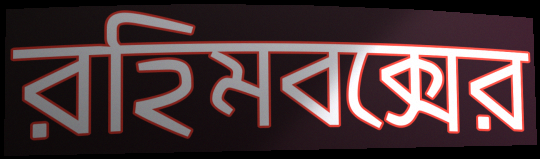
রহিমবক্সের